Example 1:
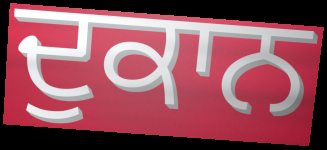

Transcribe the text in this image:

ਦੁਕਾਨ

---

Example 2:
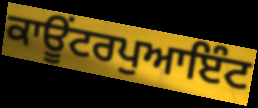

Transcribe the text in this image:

ਕਾਊਂਟਰਪੁਆਇੰਟ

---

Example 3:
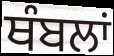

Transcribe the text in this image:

ਥੰਬਲਾਂ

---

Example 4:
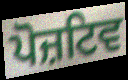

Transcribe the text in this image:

ਪੋਜ਼ਟਿਵ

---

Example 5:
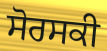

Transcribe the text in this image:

ਸੋਰਸਕੀ